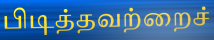
பிடித்தவற்றைச்